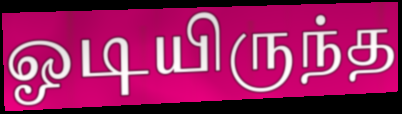
ஓடியிருந்த